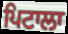
ਪਿਟਾਲਾ